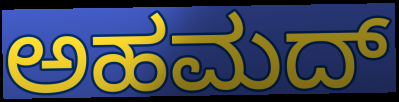
ಅಹಮದ್